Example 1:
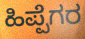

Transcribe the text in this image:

ಹಿಪ್ಪೆಗರ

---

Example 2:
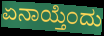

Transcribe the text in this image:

ಏನಾಯ್ತೆಂದು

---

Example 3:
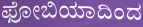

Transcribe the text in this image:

ಫೋಬಿಯಾದಿಂದ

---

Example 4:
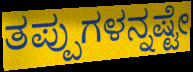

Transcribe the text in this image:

ತಪ್ಪುಗಳನ್ನಷ್ಟೇ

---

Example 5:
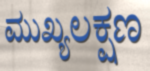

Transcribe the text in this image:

ಮುಖ್ಯಲಕ್ಷಣ